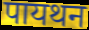
पायथन